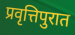
प्रवृत्तिपुरात